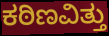
ಕಠಿಣವಿತ್ತು